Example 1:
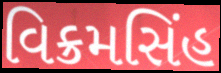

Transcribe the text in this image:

વિક્રમસિંહ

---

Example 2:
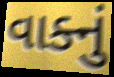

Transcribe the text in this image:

વાક્નું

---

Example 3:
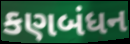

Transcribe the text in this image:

કણબંધન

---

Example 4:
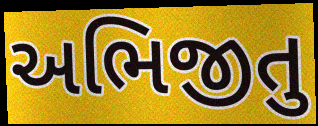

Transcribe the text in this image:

અભિજીતુ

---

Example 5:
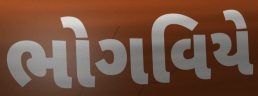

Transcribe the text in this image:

ભોગવિયે